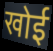
खोई